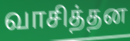
வாசித்தன